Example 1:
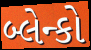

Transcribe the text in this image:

બ્લેન્કો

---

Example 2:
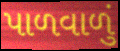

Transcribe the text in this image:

પાળવાળું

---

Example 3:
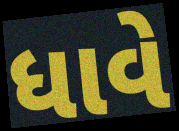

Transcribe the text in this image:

ધાવે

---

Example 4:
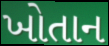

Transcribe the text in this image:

ખોતાન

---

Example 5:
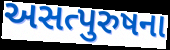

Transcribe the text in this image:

અસત્પુરુષના